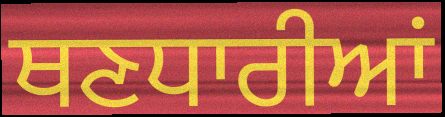
ਥਣਧਾਰੀਆਂ